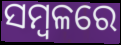
ସମ୍ବଳରେ